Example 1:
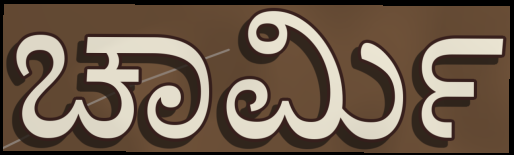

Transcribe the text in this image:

ಚಾರ್ಮಿ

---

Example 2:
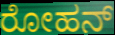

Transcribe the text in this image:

ರೋಹನ್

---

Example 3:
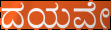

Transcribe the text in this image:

ದಯವೇ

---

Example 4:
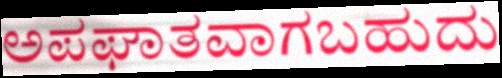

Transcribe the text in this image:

ಅಪಘಾತವಾಗಬಹುದು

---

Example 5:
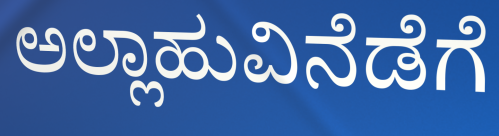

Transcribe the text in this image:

ಅಲ್ಲಾಹುವಿನೆಡೆಗೆ